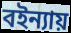
বইন্যায়